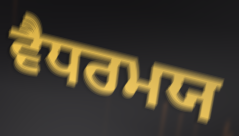
ਵੈਧਰਮਯ